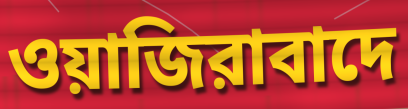
ওয়াজিরাবাদে